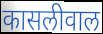
कासलीवाल